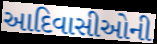
આદિવાસીઓની